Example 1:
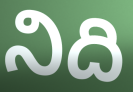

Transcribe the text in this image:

నిది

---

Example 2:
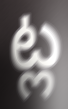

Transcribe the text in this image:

ట్ల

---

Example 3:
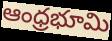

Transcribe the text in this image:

ఆంధ్రభూమి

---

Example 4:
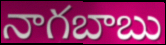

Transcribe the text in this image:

నాగబాబు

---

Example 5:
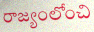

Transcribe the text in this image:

రాజ్యంలోంచి